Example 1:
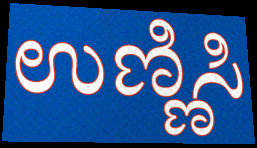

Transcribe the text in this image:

ಉಣ್ಣಿಸಿ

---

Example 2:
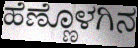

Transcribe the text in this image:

ಹೆಣ್ಣೊಳಗಿನ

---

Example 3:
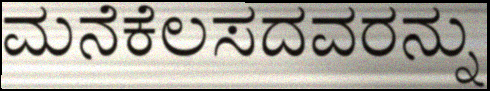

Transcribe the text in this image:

ಮನೆಕೆಲಸದವರನ್ನು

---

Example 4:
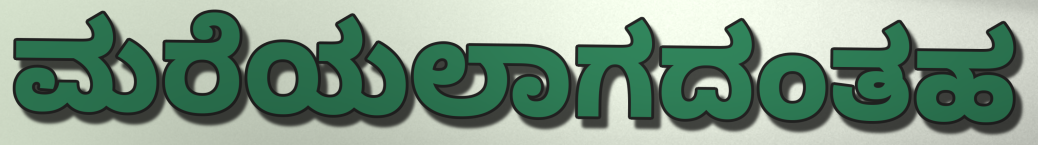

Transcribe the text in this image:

ಮರೆಯಲಾಗದಂತಹ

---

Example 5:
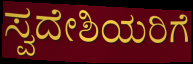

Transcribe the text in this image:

ಸ್ವದೇಶಿಯರಿಗೆ